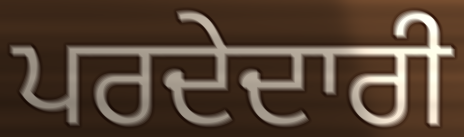
ਪਰਦੇਦਾਰੀ